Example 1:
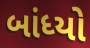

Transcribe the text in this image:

બાંધ્યો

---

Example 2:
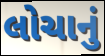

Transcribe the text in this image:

લોચાનું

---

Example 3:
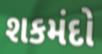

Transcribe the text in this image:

શકમંદો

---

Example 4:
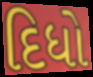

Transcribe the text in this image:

દિધો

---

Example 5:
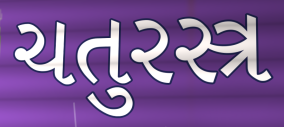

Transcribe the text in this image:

ચતુરસ્ત્ર